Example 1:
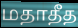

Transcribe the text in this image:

மதாதீத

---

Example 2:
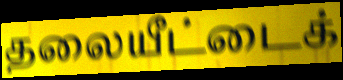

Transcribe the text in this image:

தலையீட்டைக்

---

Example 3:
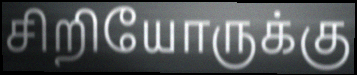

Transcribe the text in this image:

சிறியோருக்கு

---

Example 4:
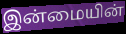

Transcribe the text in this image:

இன்மையின்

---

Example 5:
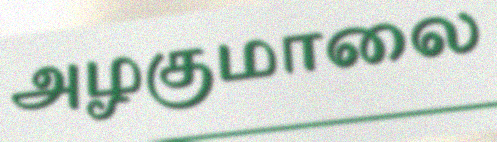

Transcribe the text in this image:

அழகுமாலை